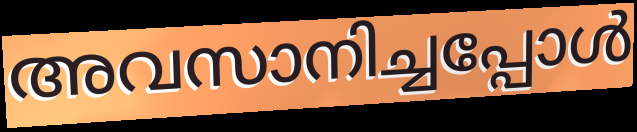
അവസാനിച്ചപ്പോൾ